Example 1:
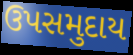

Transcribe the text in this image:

ઉપસમુદાય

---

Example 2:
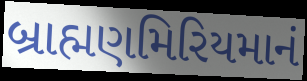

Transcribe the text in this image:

બ્રાહ્મણમિરિયમાનં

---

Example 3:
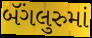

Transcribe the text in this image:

બૅંગલુરુમાં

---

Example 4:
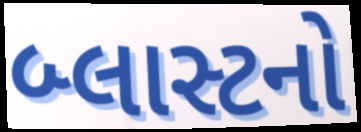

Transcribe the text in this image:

બ્લાસ્ટનો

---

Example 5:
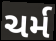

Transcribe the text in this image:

ચર્મ